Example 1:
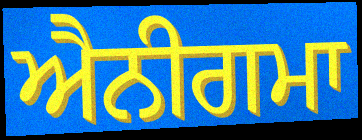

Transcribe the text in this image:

ਐਨੀਗਮਾ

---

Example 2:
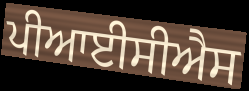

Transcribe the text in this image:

ਪੀਆਈਸੀਐਸ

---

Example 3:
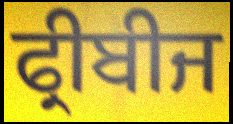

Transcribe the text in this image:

ਫ੍ਰੀਬੀਜ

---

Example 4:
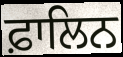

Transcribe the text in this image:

ਫ਼ਾਲਿਨ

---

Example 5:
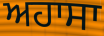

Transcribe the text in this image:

ਅਹਾਸਾ